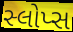
સ્લોપ્સ